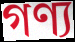
গণ্য